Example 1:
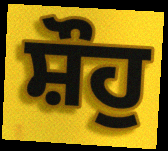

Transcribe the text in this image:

ਸ਼ੌਹੁ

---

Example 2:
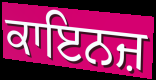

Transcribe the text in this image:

ਕਾਇਨਜ਼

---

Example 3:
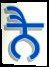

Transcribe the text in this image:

ਨੈ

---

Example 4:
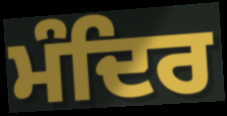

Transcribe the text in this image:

ਮੰਦਿਰ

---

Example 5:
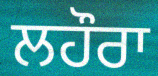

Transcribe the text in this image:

ਲਹੌਰਾ